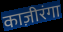
काज़ीरंगा